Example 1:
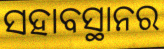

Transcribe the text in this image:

ସହାବସ୍ଥାନର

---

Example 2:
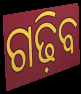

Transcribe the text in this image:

ଗଢ଼ିବ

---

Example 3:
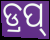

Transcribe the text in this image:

ଡ୍ରପ୍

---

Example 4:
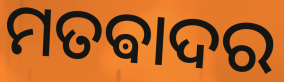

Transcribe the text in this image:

ମତଵାଦର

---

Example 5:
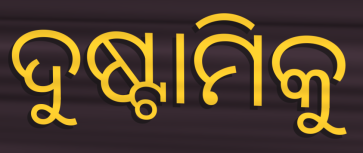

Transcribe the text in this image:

ଦୁଷ୍ଟାମିକୁ